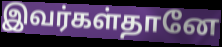
இவர்கள்தானே